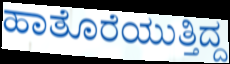
ಹಾತೊರೆಯುತ್ತಿದ್ದ